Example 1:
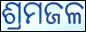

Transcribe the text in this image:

ଶ୍ରମଜଳ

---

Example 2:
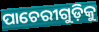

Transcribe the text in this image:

ପାଚେରୀଗୁଡ଼ିକୁ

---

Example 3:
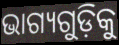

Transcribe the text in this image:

ଭାଗ୍ୟଗୁଡ଼ିକୁ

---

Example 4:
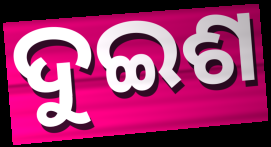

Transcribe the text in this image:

ଦୁଇଶ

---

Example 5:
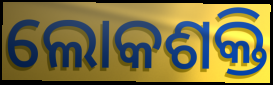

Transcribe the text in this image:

ଲୋକଶକ୍ତି